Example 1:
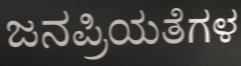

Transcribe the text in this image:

ಜನಪ್ರಿಯತೆಗಳ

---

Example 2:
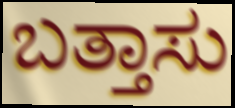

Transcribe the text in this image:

ಬತ್ತಾಸು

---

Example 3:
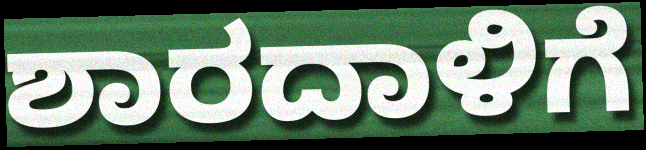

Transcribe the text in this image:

ಶಾರದಾಳಿಗೆ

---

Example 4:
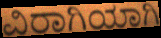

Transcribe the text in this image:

ವಿರಾಗಿಯಾಗಿ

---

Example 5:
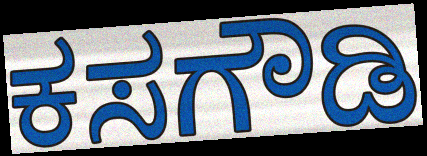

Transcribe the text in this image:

ಕಸಗೌಡಿ